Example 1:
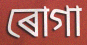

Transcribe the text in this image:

ৰোগা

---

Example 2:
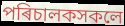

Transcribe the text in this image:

পৰিচালকসকলে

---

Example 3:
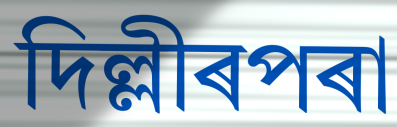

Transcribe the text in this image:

দিল্লীৰপৰা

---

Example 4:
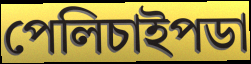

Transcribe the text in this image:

পেলিচাইপডা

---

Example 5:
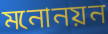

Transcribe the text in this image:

মনোনয়ন